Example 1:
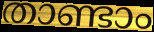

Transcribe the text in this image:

താണ്ടാം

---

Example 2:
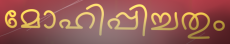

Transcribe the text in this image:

മോഹിപ്പിച്ചതും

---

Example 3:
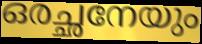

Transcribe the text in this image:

ഒരച്ഛനേയും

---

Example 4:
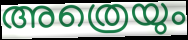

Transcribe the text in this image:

അത്രെയും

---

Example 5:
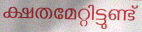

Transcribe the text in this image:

ക്ഷതമേറ്റിട്ടുണ്ട്